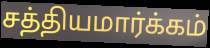
சத்தியமார்க்கம்